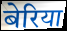
बेरिया